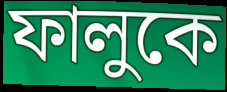
ফালুকে